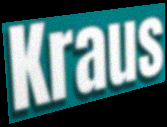
Kraus